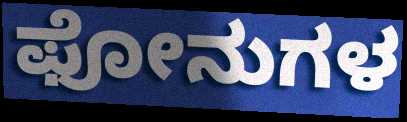
ಫೋನುಗಳ